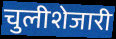
चुलीशेजारी